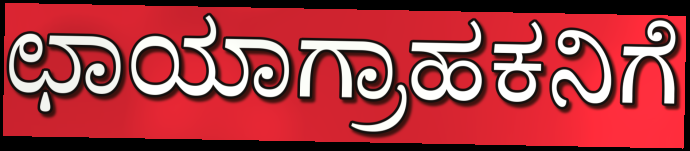
ಛಾಯಾಗ್ರಾಹಕನಿಗೆ